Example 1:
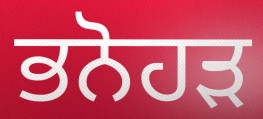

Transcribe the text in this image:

ਭਨੋਹੜ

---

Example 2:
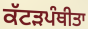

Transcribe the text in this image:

ਕੱਟੜਪੰਥੀਤਾ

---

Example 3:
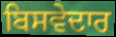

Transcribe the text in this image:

ਬਿਸਵੇਦਾਰ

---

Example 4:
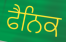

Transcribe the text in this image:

ਫੈਨਿਕ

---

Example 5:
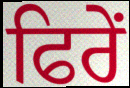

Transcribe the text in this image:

ਫਿਰੇਂ